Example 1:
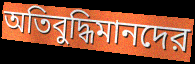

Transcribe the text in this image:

অতিবুদ্ধিমানদের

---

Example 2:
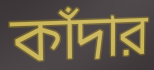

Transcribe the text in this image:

কাঁদার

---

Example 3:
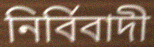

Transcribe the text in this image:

নির্বিবাদী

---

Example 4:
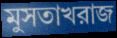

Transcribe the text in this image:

মুসতাখরাজ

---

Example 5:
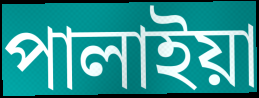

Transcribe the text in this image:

পালাইয়া